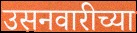
उसनवारीच्या